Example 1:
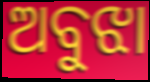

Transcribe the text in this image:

ଅବୁଝା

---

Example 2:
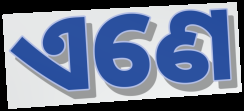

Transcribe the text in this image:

ଏଣେ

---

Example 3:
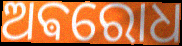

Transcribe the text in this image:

ଅଵରୋଧ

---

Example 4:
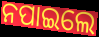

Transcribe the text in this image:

ନପାଇଲେ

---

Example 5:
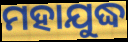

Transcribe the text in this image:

ମହାଯୁଦ୍ଧ